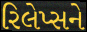
રિલેપ્સને